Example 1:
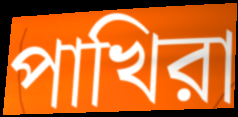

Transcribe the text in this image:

পাখিরা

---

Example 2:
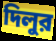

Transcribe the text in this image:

দিলুর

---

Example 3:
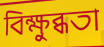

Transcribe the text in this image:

বিক্ষুব্ধতা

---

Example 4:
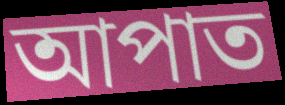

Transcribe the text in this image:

আপাত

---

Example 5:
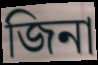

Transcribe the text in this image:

জিনা